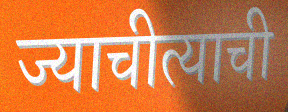
ज्याचीत्याची